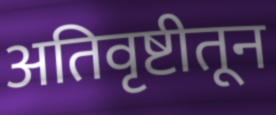
अतिवृष्टीतून